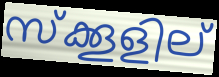
സ്ക്കൂളില്